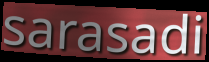
sarasadi